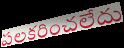
పలకరించలేదు